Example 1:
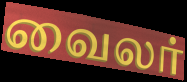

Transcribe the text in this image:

வைலர்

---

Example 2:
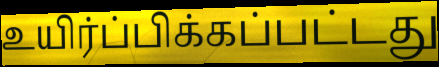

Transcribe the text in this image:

உயிர்ப்பிக்கப்பட்டது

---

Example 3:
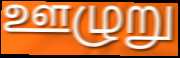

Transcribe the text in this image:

ஊழுறு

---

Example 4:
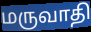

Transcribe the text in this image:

மருவாதி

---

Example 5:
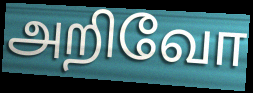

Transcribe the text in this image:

அறிவோ